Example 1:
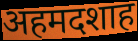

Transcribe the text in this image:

अहमदशाह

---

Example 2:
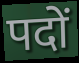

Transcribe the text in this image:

पदों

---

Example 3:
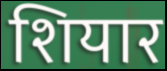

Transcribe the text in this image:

शियार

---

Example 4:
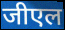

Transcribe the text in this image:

जीएल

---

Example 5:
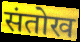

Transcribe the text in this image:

संतोख